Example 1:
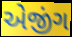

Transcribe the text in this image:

એજીંગ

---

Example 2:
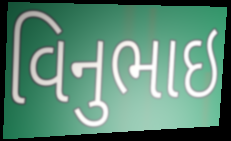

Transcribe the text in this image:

વિનુભાઇ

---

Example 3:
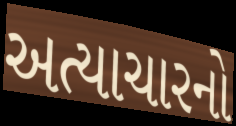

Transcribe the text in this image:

અત્યાચારનો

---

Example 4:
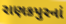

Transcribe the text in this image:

રાણકપુરનાં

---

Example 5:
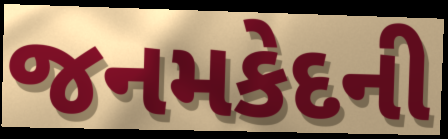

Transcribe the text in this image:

જનમકેદની